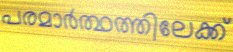
പരമാർത്ഥത്തിലേക്ക്